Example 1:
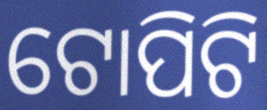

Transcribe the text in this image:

ଟୋପିଟି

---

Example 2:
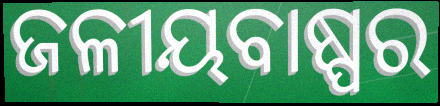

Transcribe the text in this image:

ଜଳୀୟବାଷ୍ପର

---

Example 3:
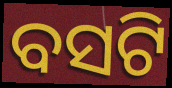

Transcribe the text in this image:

ବସଟି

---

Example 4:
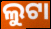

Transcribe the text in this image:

ଲୁଟା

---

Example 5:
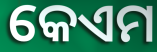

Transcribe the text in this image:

କେଏମ